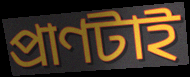
প্রাণটাই